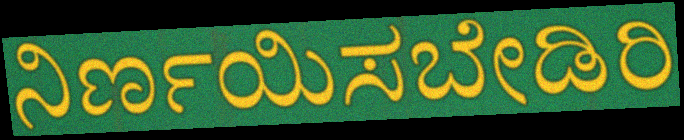
ನಿರ್ಣಯಿಸಬೇಡಿರಿ